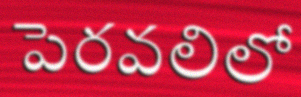
పెరవలిలో